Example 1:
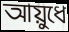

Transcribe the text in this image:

আয়ুধে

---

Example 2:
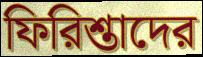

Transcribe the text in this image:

ফিরিশ্তাদের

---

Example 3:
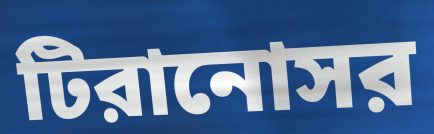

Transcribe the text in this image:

টিরানোসর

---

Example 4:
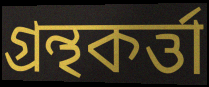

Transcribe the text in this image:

গ্রন্থকর্ত্তা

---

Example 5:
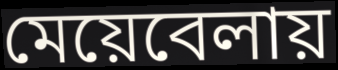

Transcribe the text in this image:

মেয়েবেলায়